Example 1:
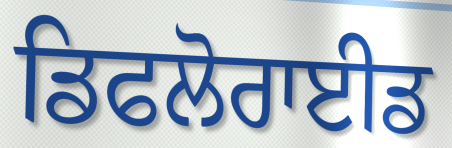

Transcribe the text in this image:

ਡਿਫਲੋਰਾਈਡ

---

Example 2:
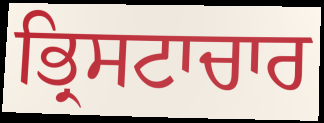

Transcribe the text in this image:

ਭ੍ਰਿਸਟਾਚਾਰ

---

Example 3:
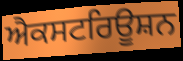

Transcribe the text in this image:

ਐਕਸਟਰਿਊਸ਼ਨ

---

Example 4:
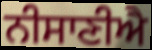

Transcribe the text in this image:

ਨੀਸਾਣੀਐ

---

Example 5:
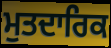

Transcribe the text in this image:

ਮੁਤਦਾਰਿਕ